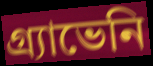
গ্র্যাভেনি